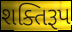
શક્તિરૂપ